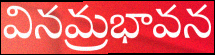
వినమ్రభావన